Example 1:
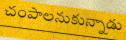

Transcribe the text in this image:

చంపాలనుకున్నాడు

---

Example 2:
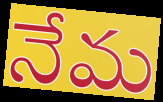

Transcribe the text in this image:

నేమ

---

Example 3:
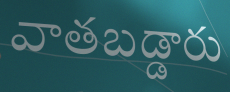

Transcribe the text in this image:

వాతబడ్డారు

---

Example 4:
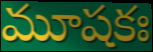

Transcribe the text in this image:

మూషకః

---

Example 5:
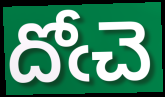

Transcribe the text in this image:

దోఁచె